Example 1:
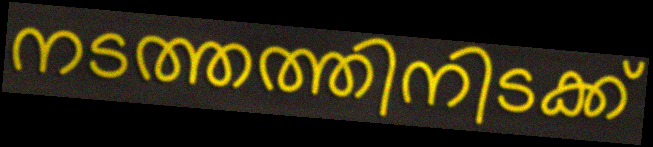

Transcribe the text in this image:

നടത്തത്തിനിടക്ക്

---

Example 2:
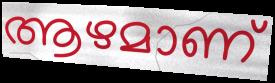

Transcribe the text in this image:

ആഴമാണ്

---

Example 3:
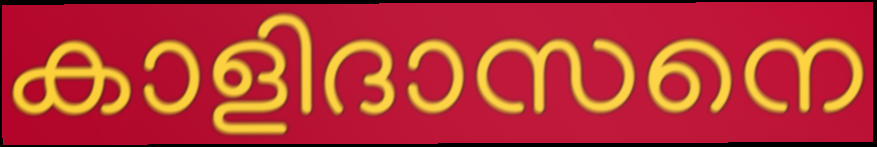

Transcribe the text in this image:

കാളിദാസനെ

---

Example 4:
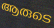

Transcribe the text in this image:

ആരുടെ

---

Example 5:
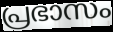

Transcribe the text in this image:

പ്രഭാസം